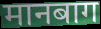
मानबाग